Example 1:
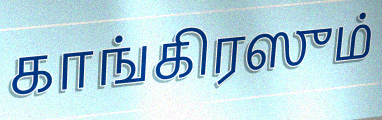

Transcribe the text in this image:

காங்கிரஸும்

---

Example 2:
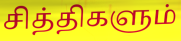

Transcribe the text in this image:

சித்திகளும்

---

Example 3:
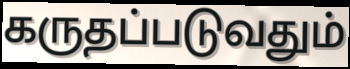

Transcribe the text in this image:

கருதப்படுவதும்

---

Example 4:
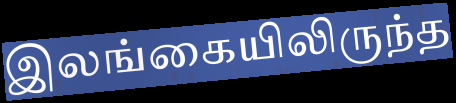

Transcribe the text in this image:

இலங்கையிலிருந்த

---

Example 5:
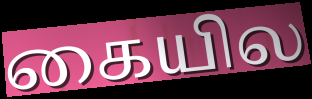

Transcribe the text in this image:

கையில